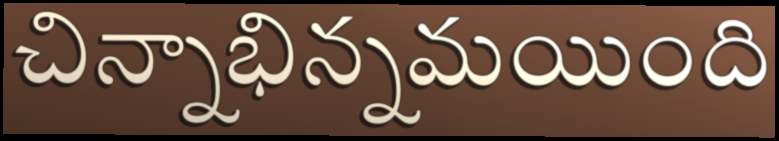
చిన్నాభిన్నమయింది